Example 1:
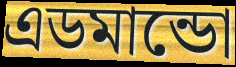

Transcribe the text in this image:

এডমান্ডো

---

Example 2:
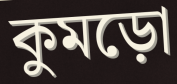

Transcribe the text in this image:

কুমড়ো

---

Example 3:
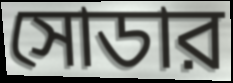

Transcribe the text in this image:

সোডার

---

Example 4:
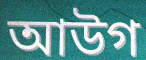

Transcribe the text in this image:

আউগ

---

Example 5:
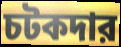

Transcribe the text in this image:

চটকদার